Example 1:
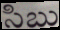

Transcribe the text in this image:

సిబు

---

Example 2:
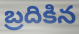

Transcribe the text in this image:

బ్రదికిన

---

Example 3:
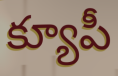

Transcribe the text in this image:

క్యూపీ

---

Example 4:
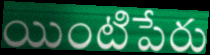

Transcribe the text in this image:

యింటిపేరు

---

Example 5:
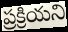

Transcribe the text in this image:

ప్రక్రియని